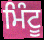
ਮਿੰਟੂ